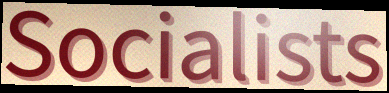
Socialists